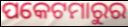
ପକେଟମାରୁର